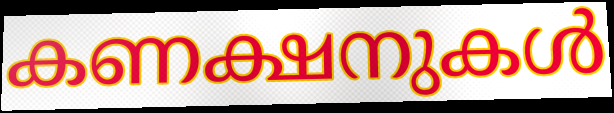
കണക്ഷനുകൾ